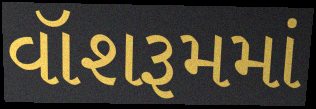
વૉશરૂમમાં